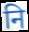
नि